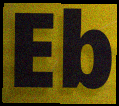
Eb